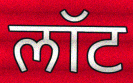
लॉट